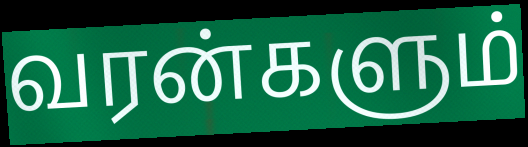
வரன்களும்